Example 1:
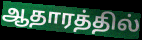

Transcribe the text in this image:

ஆதாரத்தில்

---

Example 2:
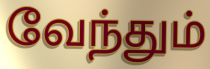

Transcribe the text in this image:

வேந்தும்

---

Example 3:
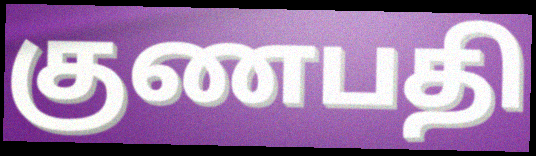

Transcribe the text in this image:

குணபதி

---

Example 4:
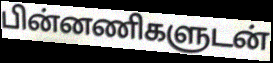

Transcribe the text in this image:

பின்னணிகளுடன்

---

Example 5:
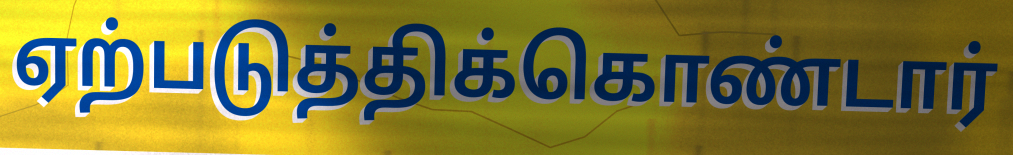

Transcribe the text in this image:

ஏற்படுத்திக்கொண்டார்